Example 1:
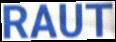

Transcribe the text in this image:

RAUT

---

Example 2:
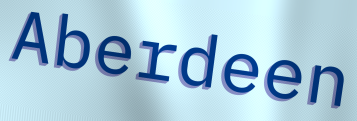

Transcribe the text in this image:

Aberdeen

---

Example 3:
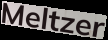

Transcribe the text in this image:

Meltzer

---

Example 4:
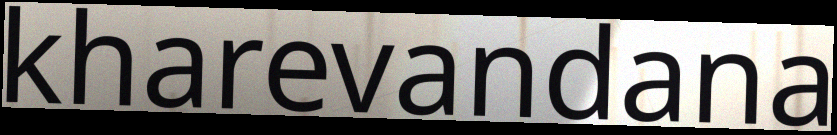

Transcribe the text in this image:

kharevandana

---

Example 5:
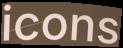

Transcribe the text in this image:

icons